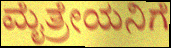
ಮೈತ್ರೇಯನಿಗೆ